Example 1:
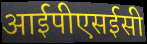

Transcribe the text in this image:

आईपीएसईसी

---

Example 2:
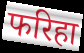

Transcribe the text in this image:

फरिहा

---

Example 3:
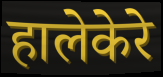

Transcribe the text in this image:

हालेकेरे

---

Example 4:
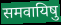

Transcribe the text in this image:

समवायिषु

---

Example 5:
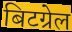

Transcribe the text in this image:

बिटग्रेल